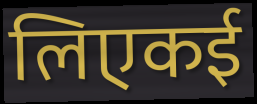
लिएकई